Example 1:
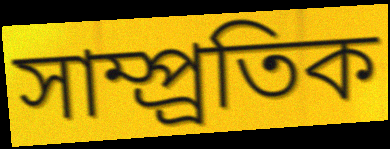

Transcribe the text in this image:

সাম্প্র্রতিক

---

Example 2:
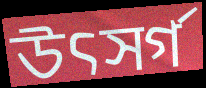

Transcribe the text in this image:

উৎসর্গ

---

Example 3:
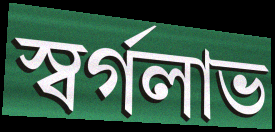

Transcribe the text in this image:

স্বর্গলাভ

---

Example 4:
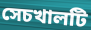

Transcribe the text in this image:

সেচখালটি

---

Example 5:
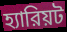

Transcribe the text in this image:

হ্যারিয়ট